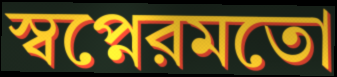
স্বপ্নেরমতো